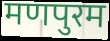
मणपुरम